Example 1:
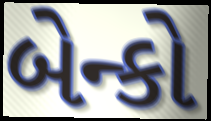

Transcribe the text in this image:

બેન્કો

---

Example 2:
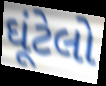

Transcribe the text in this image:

ઘૂંટેલો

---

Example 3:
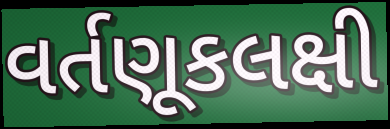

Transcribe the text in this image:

વર્તણૂકલક્ષી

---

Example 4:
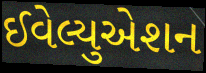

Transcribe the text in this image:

ઈવેલ્યુએશન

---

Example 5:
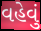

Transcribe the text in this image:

વહેવું